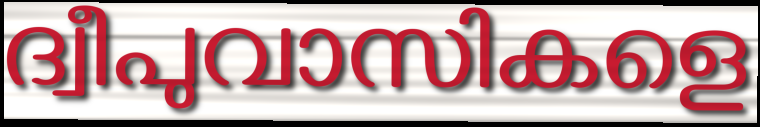
ദ്വീപുവാസികളെ